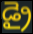
డ్రై